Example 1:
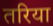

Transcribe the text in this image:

तरिया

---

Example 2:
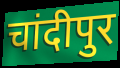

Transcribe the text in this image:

चांदीपुर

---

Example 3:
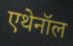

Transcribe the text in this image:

एथेनॉल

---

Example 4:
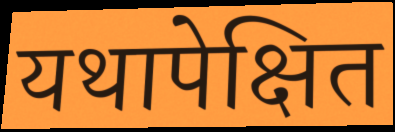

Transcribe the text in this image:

यथापेक्षित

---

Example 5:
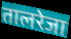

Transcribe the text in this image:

तालरेजा